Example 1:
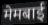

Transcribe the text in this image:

मेमबाई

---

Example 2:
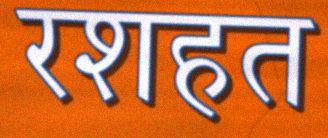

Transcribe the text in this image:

रशहत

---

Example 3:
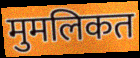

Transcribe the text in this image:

मुमलिकत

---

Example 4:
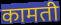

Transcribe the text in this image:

कामती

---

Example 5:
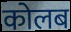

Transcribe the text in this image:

कोलब